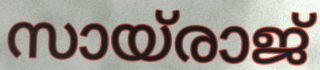
സായ്രാജ്